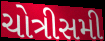
ચોત્રીસમી